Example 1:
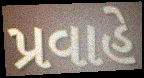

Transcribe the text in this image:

પ્રવાહે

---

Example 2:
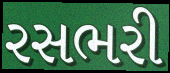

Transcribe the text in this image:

રસભરી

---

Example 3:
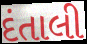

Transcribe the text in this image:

દંતાલી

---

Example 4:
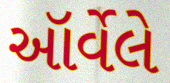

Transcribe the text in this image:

ઑર્વેલે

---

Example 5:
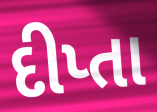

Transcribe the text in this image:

દીપ્તા